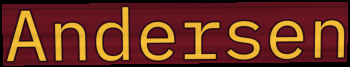
Andersen